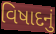
વિષાદનું